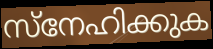
സ്നേഹിക്കുക